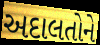
અદાલતોને